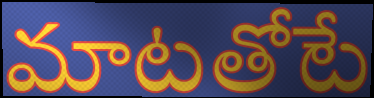
మాటతోటే